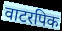
वाटरपिक